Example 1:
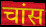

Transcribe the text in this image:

चांस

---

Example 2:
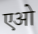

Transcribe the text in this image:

एओ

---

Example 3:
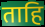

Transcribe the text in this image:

ताहि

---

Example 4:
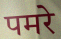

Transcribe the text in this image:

पमरे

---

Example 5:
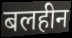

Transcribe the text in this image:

बलहीन